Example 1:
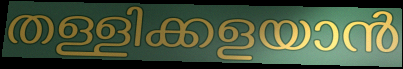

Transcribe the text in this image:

തള്ളിക്കളയാൻ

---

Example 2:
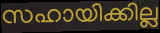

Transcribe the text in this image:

സഹായിക്കില്ല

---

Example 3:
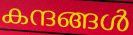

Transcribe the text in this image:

കന്ദങ്ങൾ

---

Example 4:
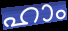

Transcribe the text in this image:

ഹാം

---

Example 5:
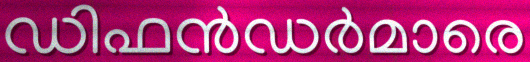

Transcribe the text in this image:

ഡിഫൻഡർമാരെ